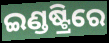
ଇଣ୍ଡଷ୍ଟ୍ରିରେ